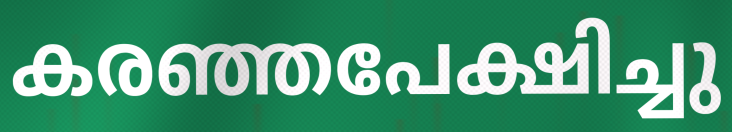
കരഞ്ഞപേക്ഷിച്ചു